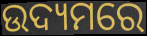
ଉଦ୍ୟମରେ